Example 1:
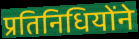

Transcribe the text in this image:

प्रतिनिधियोंने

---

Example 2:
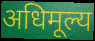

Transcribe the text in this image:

अधिमूल्य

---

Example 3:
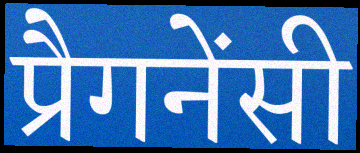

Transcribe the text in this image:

प्रैगनेंसी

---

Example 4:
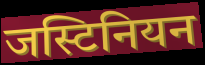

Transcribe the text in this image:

जस्टिनियन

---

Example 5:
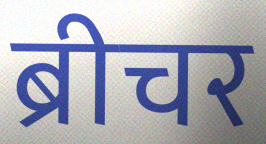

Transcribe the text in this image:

ब्रीचर